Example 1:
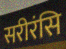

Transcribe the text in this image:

सरीरंसि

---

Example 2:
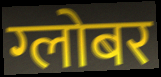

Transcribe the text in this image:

ग्लोबर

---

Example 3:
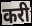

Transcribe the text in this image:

करी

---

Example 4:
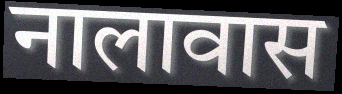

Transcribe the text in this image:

नालावास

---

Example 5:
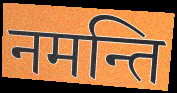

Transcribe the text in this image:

नमन्ति